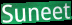
Suneet